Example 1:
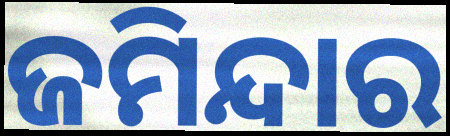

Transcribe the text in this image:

ଜମିନ୍ଦାର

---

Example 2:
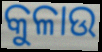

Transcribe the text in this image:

କୁଳାଉ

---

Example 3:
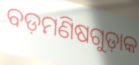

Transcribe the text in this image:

ବଡ଼ମଣିଷଗୁଡ଼ାକ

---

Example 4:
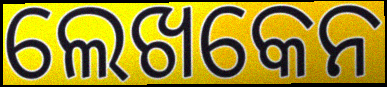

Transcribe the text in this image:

ଲେଖକେନ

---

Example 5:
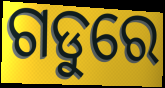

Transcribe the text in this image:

ଗଡୁରେ